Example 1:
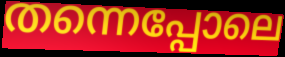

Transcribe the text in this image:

തന്നെപ്പോലെ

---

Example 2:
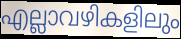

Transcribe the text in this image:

എല്ലാവഴികളിലും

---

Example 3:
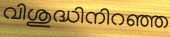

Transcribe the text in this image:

വിശുദ്ധിനിറഞ്ഞ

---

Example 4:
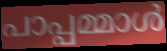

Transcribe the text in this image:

പാപ്പമ്മാൾ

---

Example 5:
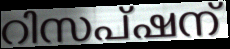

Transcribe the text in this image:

റിസപ്ഷന്